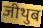
जीथुब